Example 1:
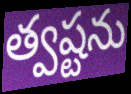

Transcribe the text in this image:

త్వష్టను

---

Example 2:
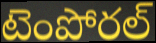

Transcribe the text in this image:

టెంపోరల్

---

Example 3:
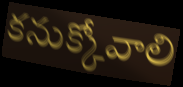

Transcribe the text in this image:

కనుక్కోవాలి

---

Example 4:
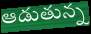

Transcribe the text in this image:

ఆడుతున్న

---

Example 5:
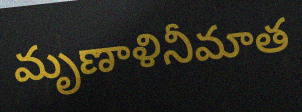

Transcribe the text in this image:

మృణాళినీమాత